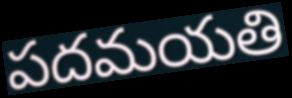
పదమయతి